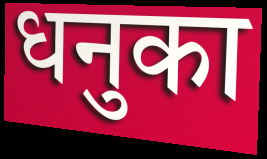
धनुका